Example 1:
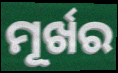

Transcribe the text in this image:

ମୂର୍ଖର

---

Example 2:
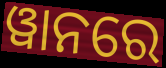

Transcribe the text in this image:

ୱାନରେ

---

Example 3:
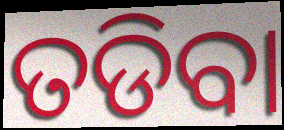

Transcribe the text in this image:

ତଡିବା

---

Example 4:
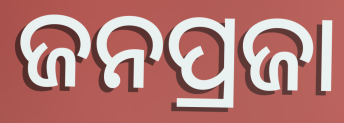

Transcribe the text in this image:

ଜନପ୍ରଜା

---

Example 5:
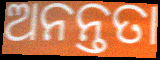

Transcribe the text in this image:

ଅନନ୍ତତା